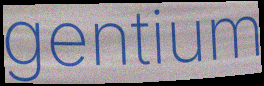
gentium